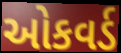
ઓકવર્ડ